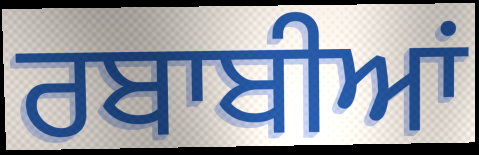
ਰਬਾਬੀਆਂ